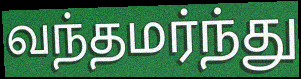
வந்தமர்ந்து